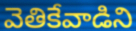
వెతికేవాడిని